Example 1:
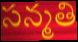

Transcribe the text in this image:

సన్మతి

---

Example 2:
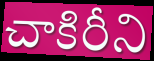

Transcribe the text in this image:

చాకిరీని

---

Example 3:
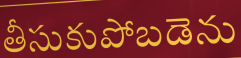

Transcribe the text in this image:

తీసుకుపోబడెను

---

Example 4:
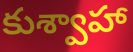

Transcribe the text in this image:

కుశ్వాహా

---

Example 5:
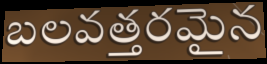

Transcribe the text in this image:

బలవత్తరమైన